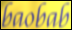
baobab